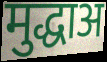
मुद्धाअ